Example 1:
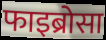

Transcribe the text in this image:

फाइब्रोसा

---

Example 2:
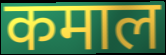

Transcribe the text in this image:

कमाल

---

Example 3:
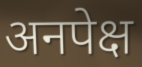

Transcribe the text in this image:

अनपेक्ष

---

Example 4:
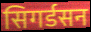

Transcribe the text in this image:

सिगर्डसन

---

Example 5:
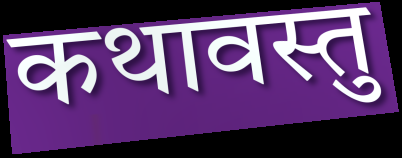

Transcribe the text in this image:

कथावस्‍तु